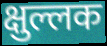
क्षुल्लक